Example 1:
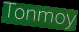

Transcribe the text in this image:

Tonmoy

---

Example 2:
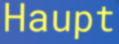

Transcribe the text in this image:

Haupt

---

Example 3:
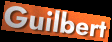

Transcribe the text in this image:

Guilbert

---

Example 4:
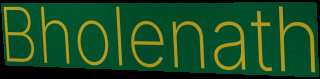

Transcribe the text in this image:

Bholenath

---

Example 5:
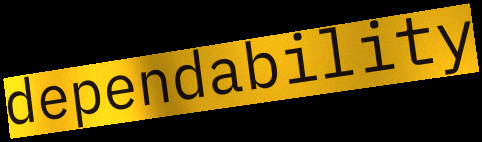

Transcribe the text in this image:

dependability